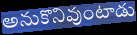
అనుకొనివుంటాడు